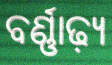
ବର୍ଣ୍ଣାଢ଼୍ୟ